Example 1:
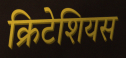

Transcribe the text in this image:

क्रिटेशियस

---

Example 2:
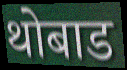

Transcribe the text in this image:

थोबाड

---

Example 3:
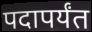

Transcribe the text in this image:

पदापर्यंत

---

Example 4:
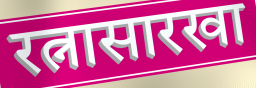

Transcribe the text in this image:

रत्नासारखा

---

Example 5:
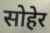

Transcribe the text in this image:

सोहेर